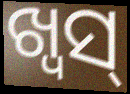
ଖ୍ୱସ୍